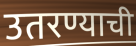
उतरण्याची